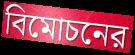
বিমোচনের